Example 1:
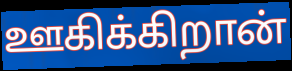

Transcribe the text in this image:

ஊகிக்கிறான்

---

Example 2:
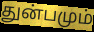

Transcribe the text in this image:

துன்பமும்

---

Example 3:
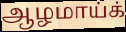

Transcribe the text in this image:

ஆழமாய்க்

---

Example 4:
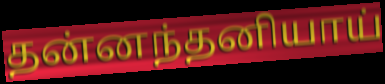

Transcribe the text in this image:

தன்னந்தனியாய்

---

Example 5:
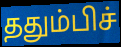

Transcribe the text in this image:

ததும்பிச்